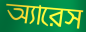
অ্যারেস